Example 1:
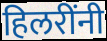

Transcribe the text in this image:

हिलरींनी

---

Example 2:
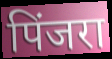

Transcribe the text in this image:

पिंजरा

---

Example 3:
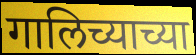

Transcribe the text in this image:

गालिच्याच्या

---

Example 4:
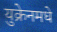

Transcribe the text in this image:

युक्रेनमधे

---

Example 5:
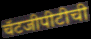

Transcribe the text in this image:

चॅटजीपीटीची